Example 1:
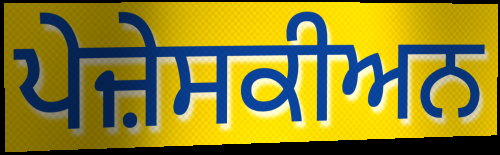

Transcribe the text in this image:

ਪੇਜ਼ੇਸਕੀਅਨ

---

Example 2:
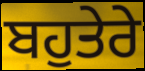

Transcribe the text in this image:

ਬਹੁਤੇਰੇ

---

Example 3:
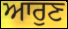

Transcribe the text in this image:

ਆਰੁਣ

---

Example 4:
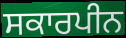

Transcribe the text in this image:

ਸਕਾਰਪੀਨ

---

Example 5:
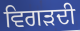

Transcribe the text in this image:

ਵਿਗੜਦੀ